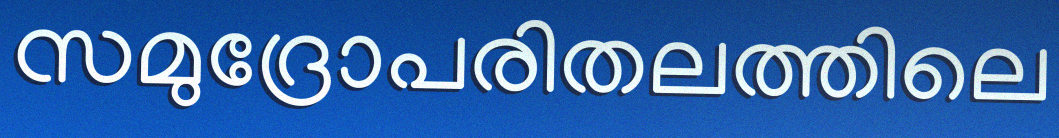
സമുദ്രോപരിതലത്തിലെ